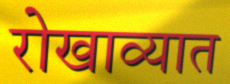
रोखाव्यात